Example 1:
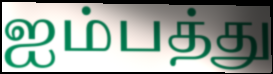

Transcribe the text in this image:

ஐம்பத்து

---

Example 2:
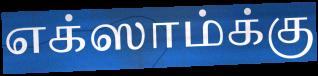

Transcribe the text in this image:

எக்ஸாம்க்கு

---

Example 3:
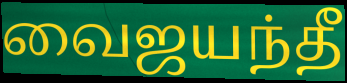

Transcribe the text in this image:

வைஜயந்தீ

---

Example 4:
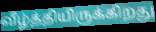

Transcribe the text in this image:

வீழ்த்தியிருக்கிறது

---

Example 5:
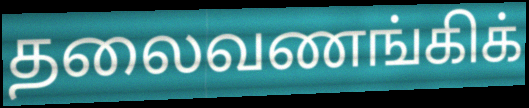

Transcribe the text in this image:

தலைவணங்கிக்